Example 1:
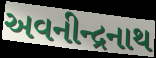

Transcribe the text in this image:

અવનીન્દ્રનાથ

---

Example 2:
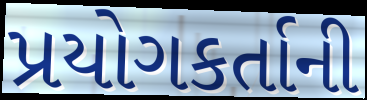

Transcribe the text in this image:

પ્રયોગકર્તાની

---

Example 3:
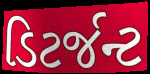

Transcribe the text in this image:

ડિટર્જન્ટ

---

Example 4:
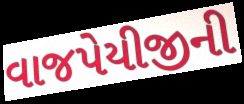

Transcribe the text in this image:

વાજપેયીજીની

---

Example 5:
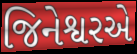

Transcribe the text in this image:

જિનેશ્વરએ